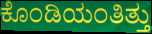
ಕೊಂಡಿಯಂತಿತ್ತು